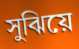
সুঝিয়ে